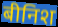
बीनिश